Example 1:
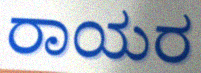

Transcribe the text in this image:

ರಾಯರ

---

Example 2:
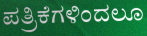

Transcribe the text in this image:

ಪತ್ರಿಕೆಗಳಿಂದಲೂ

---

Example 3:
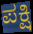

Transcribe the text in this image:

ಪಕ್ಷಿ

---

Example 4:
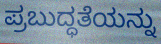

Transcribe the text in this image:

ಪ್ರಬುದ್ಧತೆಯನ್ನು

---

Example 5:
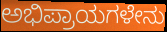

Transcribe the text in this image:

ಅಭಿಪ್ರಾಯಗಳೇನು